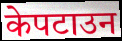
केपटाउन